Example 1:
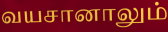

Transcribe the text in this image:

வயசானாலும்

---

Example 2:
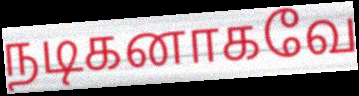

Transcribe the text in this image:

நடிகனாகவே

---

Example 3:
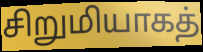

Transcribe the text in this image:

சிறுமியாகத்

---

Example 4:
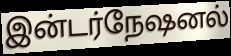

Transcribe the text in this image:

இன்டர்நேஷனல்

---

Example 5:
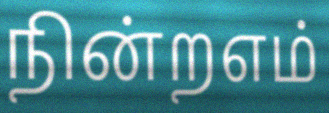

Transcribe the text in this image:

நின்றஎம்